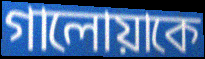
গালোয়াকে